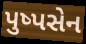
પુષ્પસેન